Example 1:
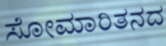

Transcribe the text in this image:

ಸೋಮಾರಿತನದ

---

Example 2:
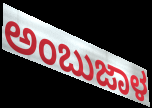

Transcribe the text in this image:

ಅಂಬುಜಾಳ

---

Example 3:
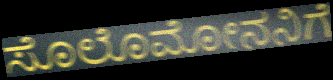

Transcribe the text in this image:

ಸೊಲೊಮೋನನಿಗೆ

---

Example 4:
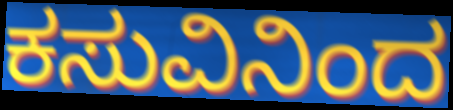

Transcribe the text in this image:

ಕಸುವಿನಿಂದ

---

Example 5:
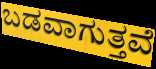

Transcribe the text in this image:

ಬಡವಾಗುತ್ತವೆ